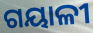
ଗୟାଳୀ